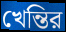
খেন্তির